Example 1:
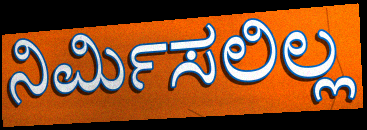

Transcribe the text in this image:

ನಿರ್ಮಿಸಲಿಲ್ಲ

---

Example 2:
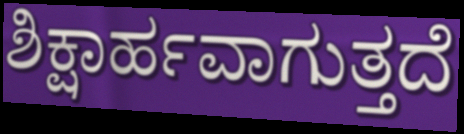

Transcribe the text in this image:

ಶಿಕ್ಷಾರ್ಹವಾಗುತ್ತದೆ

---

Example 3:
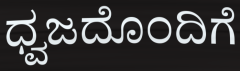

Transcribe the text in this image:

ಧ್ವಜದೊಂದಿಗೆ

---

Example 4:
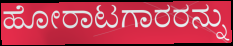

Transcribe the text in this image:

ಹೋರಾಟಗಾರರನ್ನು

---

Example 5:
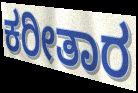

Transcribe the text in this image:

ಕರೀತಾರ